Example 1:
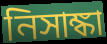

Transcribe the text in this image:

নিসাঙ্কা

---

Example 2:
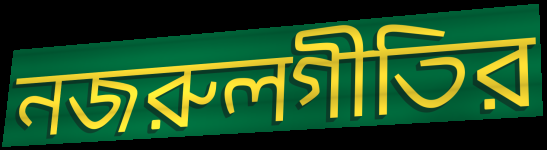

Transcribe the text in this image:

নজরুলগীতির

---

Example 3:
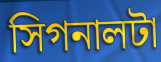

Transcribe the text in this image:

সিগনালটা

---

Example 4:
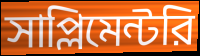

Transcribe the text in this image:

সাপ্লিমেন্টরি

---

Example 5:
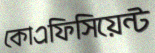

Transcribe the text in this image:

কোএফিসিয়েন্ট